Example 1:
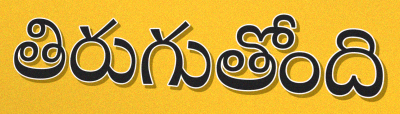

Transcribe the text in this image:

తిరుగుతోంది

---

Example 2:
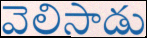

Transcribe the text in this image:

వెలిసాడు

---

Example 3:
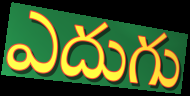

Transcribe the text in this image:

ఎదుగు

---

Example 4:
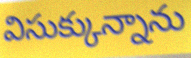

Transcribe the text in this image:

విసుక్కున్నాను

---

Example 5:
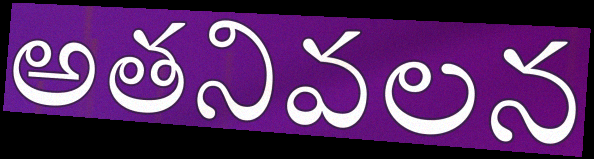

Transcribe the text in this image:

అతనివలన